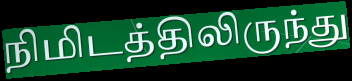
நிமிடத்திலிருந்து